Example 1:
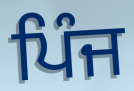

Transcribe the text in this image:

ਪਿੰਜ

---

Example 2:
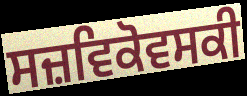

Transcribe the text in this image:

ਸਜ਼ਵਿਕੋਵਸਕੀ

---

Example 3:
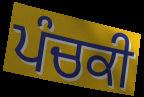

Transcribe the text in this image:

ਪੰਚਕੀ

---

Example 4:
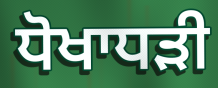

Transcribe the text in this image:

ਧੋਖਾਧਡ਼ੀ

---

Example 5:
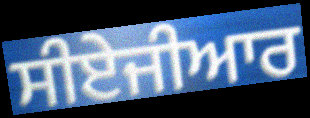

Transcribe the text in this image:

ਸੀਏਜੀਆਰ